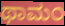
ಥಾಮಂ